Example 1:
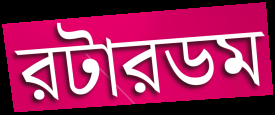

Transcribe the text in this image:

রটারডম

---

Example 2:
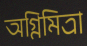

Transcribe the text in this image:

অগ্নিমিত্রা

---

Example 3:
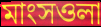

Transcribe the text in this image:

মাংসওলা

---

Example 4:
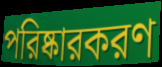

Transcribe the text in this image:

পরিষ্কারকরণ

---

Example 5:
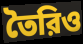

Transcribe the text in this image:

তৈরিও